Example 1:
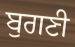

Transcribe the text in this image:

ਬੁਗਣੀ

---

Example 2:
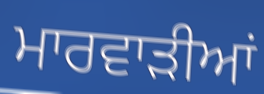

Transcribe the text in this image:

ਮਾਰਵਾੜੀਆਂ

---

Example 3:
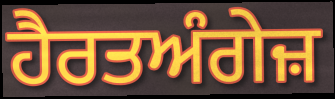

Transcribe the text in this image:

ਹੈਰਤਅੰਗੇਜ਼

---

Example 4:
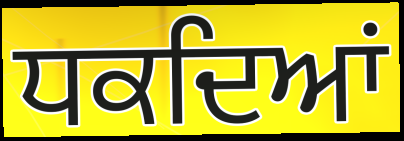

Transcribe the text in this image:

ਧਕਦਿਆਂ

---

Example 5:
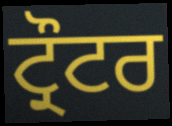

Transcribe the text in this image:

ਟ੍ਰੌਟਰ